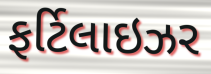
ફર્ટિલાઇઝર